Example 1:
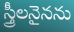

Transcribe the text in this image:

స్త్రీలనైనను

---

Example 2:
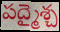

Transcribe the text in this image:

పద్మైశ్చ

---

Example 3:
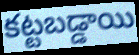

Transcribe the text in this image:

కట్టబడ్డాయి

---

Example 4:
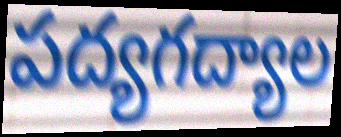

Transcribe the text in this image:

పద్యగద్యాల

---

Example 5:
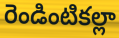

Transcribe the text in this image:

రెండింటికల్లా